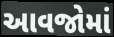
આવજોમાં